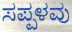
ಸಪ್ಪಳವು